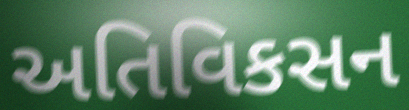
અતિવિકસન